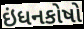
ઇંધનકોષો